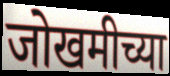
जोखमीच्या